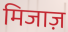
मिजाज़